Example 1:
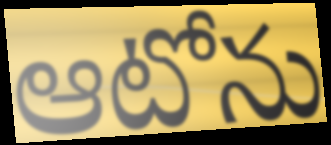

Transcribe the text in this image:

ఆటోను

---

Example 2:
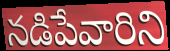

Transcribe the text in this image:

నడిపేవారిని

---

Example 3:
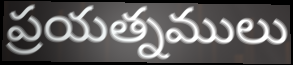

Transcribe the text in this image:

ప్రయత్నములు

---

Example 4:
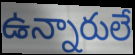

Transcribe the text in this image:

ఉన్నారులే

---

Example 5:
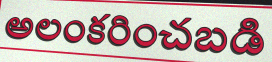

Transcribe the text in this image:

అలంకరించబడి